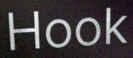
Hook